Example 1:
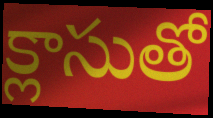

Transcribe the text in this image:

క్లాసుతో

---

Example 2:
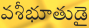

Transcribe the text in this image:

వశీభూతుడై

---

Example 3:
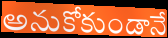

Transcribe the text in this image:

అనుకోకుండానే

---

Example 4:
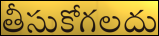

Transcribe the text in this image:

తీసుకోగలదు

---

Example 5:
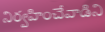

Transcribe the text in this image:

నిర్వహించేవాడిని